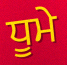
ਧੂਮੇ